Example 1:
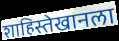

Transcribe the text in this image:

शाहिस्तेखानला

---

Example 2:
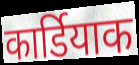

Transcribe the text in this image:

कार्डियाक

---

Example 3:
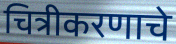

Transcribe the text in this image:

चित्रीकरणाचे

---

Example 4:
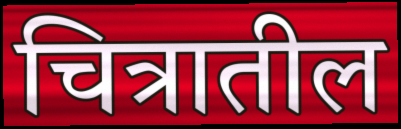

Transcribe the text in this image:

चित्रातील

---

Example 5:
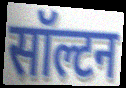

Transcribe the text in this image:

सॉल्टन